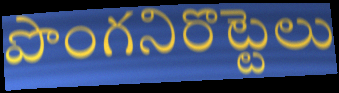
పొంగనిరొట్టెలు